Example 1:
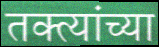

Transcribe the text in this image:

तक्त्यांच्या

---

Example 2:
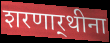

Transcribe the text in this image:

शरणार्थीना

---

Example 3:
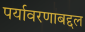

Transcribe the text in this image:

पर्यावरणाबद्दल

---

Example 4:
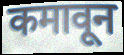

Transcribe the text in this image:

कमावून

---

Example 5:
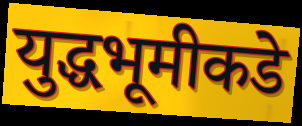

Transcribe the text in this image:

युद्धभूमीकडे